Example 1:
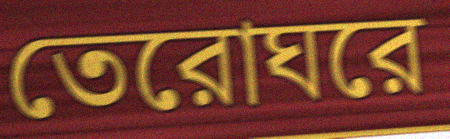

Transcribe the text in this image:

তেরোঘরে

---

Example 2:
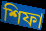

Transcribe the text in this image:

শিফা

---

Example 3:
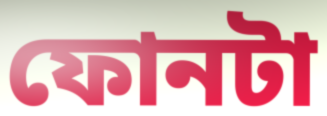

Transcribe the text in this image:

ফোনটা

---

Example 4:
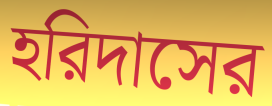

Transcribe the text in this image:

হরিদাসের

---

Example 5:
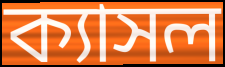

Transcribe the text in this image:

ক্যাসল